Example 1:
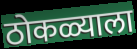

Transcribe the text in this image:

ठोकळ्याला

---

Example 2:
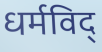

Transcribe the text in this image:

धर्मविद्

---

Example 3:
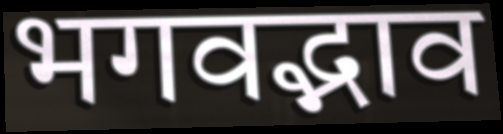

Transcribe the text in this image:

भगवद्भाव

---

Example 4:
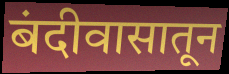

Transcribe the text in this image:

बंदीवासातून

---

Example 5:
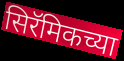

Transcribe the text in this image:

सिरॅमिकच्या